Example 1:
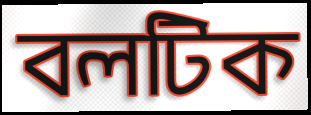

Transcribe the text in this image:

বলটিক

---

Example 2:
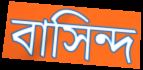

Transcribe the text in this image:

বাসিন্দ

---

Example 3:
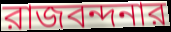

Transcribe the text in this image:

রাজবন্দনার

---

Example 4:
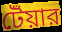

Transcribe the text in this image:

টেঁয়ার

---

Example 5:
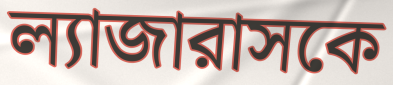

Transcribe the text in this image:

ল্যাজারাসকে